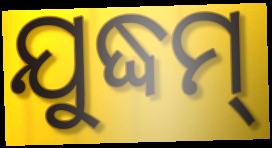
ଯୁଦ୍ଧମ୍